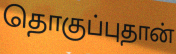
தொகுப்புதான்